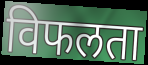
विफलता